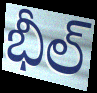
భీల్